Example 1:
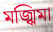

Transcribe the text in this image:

মজ্ঝিমা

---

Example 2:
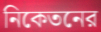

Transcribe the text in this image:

নিকেতনের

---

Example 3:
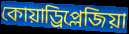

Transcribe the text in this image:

কোয়াড্রিপ্লেজিয়া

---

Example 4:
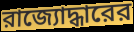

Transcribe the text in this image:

রাজ্যোদ্ধারের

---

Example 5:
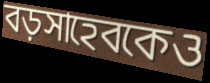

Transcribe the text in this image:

বড়সাহেবকেও